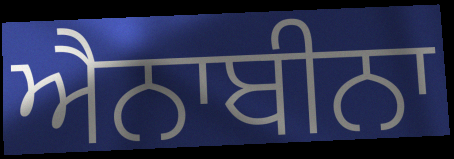
ਐਨਾਬੀਨਾ